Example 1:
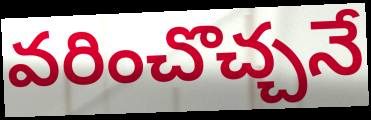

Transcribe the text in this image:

వరించొచ్చనే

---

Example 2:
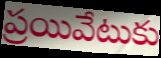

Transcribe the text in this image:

ప్రయివేటుకు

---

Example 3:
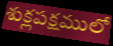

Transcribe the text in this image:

శుక్లపక్షములో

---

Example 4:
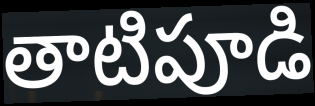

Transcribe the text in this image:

తాటిపూడి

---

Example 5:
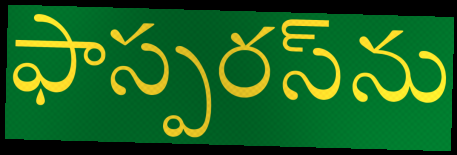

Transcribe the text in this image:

ఫాస్పరస్‌ను